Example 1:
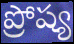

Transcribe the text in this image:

ప్రోష్య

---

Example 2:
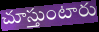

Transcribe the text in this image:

చూస్తుంటారు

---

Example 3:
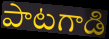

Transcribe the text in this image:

పాటగాడి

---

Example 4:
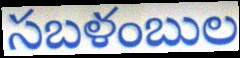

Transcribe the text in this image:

సబళంబుల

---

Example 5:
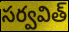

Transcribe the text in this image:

సర్వవిత్